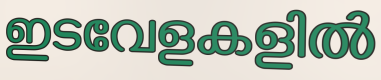
ഇടവേളകളിൽ